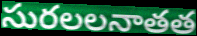
సురలలనాతత